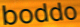
boddo